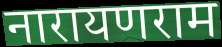
नारायणराम